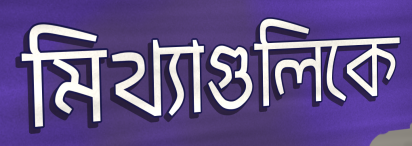
মিথ্যাগুলিকে